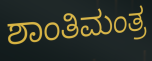
ಶಾಂತಿಮಂತ್ರ